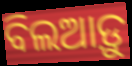
ବିଲଆଡ଼ୁ